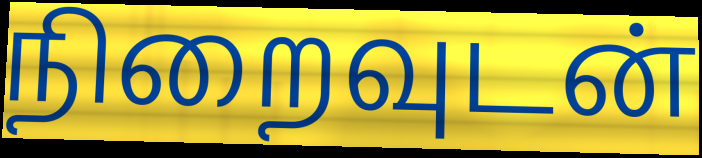
நிறைவுடன்